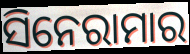
ସିନେରାମାର